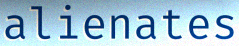
alienates